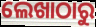
ଲେଖାଠାରୁ